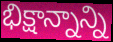
భిక్షాన్నాన్ని